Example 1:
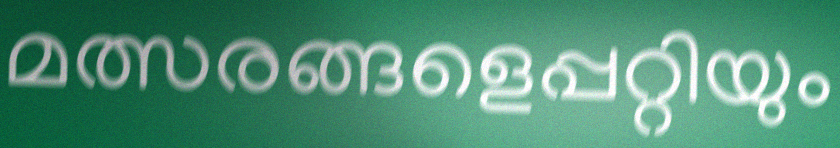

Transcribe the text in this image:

മത്സരങ്ങളെപ്പറ്റിയും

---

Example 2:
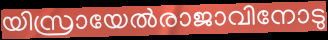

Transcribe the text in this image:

യിസ്രായേൽരാജാവിനോടു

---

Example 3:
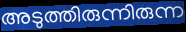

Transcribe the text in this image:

അടുത്തിരുന്നിരുന്ന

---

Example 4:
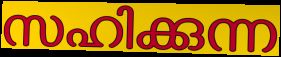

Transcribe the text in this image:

സഹിക്കുന്ന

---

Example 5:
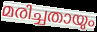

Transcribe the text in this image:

മരിച്ചതായും